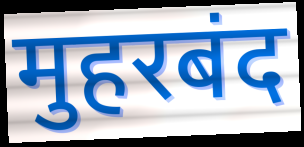
मुहरबंद